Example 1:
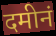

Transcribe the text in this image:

दमीनं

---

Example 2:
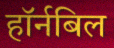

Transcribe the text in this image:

हॉर्नबिल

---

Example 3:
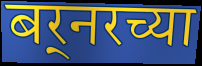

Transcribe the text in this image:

बर्नरच्या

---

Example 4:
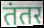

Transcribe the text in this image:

तंतर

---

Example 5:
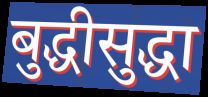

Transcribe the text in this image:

बुद्धीसुद्धा